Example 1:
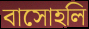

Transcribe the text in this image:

বাসোহলি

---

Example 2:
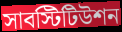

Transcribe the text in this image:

সাবস্টিটিউশন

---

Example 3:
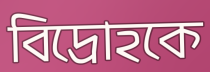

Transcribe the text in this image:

বিদ্রোহকে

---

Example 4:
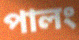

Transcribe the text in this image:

পালং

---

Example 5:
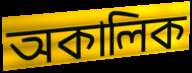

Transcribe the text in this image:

অকালিক